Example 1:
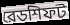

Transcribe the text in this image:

রেডশিফট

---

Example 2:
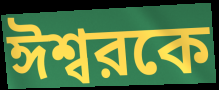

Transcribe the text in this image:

ঈশ্বরকে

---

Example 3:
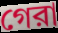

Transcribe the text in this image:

গেরা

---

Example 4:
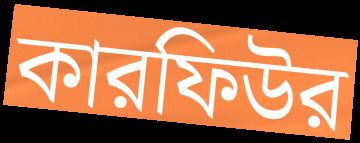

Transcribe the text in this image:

কারফিউর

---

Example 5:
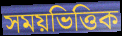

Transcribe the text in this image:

সময়ভিত্তিক